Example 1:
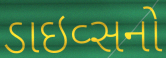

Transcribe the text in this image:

ડાઇવ્સનો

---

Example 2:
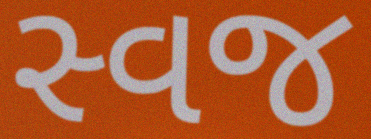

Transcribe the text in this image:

સ્વજ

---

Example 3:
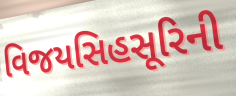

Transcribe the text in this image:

વિજયસિહસૂરિની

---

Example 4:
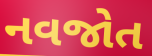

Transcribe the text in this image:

નવજોત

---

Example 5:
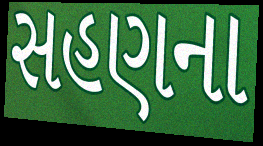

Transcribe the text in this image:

સહણના